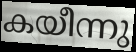
കയീന്നു